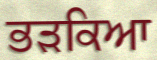
ਭੜਕਿਆ